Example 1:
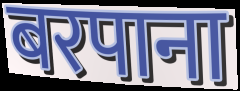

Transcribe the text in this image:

बरपाना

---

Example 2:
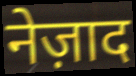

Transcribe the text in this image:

नेज़ाद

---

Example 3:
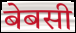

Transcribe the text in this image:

बेबसी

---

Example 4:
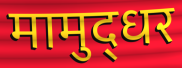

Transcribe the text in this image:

मामुद्धर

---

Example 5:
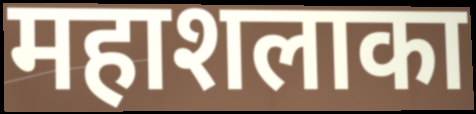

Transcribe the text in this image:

महाशलाका